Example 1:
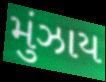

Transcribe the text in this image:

મુંઝાય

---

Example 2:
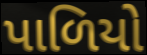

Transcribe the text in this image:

પાળિયો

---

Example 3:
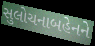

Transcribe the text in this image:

સુલોચનાબહેનને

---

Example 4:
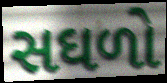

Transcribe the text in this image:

સઘળો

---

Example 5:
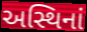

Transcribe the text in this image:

અસ્થિનાં